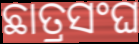
ଛାତ୍ରସଂଘ